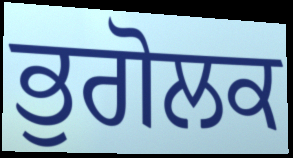
ਭੁਗੋਲਕ